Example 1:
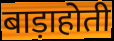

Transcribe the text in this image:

बाड़ाहोती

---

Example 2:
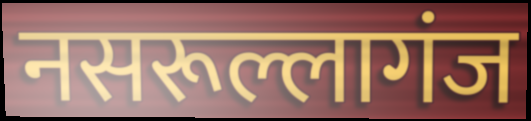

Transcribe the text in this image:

नसरूल्लागंज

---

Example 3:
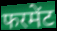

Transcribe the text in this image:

फरमेंट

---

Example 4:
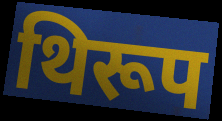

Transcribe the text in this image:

थिरूप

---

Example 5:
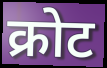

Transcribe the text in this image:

क्रोट